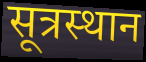
सूत्रस्थान